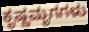
ಕೃಷ್ಣಮೃಗಗಳು